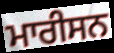
ਮਾਰੀਸਨ